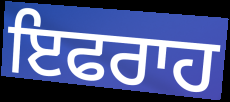
ਇਫਰਾਹ